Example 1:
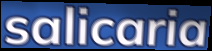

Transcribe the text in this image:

salicaria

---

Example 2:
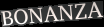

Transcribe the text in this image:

BONANZA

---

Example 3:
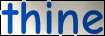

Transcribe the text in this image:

thine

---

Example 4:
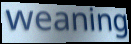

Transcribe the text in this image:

weaning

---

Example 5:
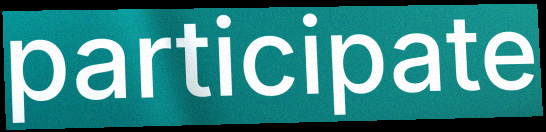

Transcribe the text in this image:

participate